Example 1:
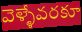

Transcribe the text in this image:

వెళ్ళేవరకూ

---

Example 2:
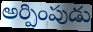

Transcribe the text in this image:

అర్పింపుడు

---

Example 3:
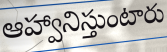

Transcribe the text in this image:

ఆహ్వానిస్తుంటారు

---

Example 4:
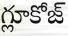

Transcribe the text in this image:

గ్లూకోజ్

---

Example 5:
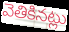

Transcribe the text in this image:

వెతికినట్లు